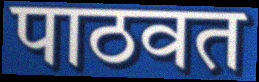
पाठवत